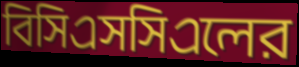
বিসিএসসিএলের